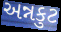
અન્નકુટ